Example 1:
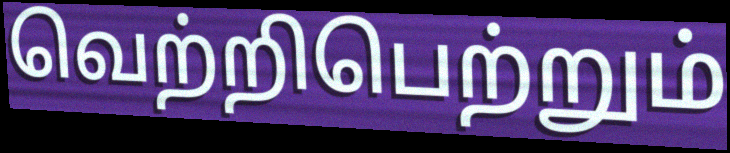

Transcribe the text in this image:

வெற்றிபெற்றும்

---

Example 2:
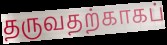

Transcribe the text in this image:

தருவதற்காகப்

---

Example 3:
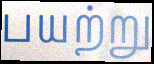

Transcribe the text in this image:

பயற்று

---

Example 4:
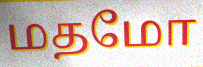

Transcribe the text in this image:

மதமோ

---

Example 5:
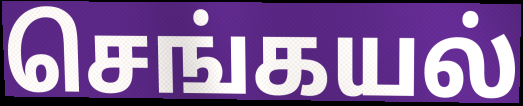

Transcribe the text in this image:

செங்கயல்